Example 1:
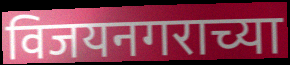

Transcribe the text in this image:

विजयनगराच्या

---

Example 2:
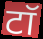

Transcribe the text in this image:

टॉ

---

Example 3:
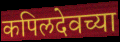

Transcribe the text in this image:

कपिलदेवच्या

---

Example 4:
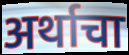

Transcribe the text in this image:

अर्थाचा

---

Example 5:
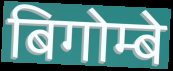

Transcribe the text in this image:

बिगोम्बे